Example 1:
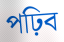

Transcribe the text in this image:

পঢ়িব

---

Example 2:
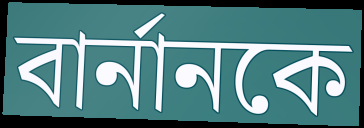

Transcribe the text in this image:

বাৰ্নানকে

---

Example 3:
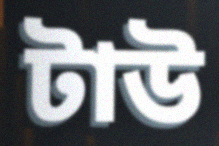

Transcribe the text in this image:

টাউ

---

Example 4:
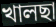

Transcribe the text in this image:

খালছা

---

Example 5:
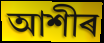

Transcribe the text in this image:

আশীৰ